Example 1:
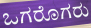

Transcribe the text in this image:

ಒಗರೊಗರು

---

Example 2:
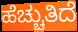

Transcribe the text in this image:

ಹೆಚ್ಚುತಿದೆ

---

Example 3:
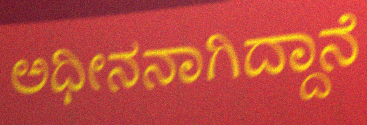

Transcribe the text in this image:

ಅಧೀನನಾಗಿದ್ದಾನೆ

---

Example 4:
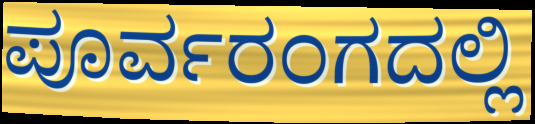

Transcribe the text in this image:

ಪೂರ್ವರಂಗದಲ್ಲಿ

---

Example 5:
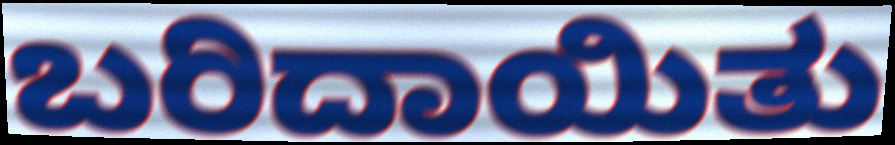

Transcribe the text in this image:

ಬರಿದಾಯಿತು